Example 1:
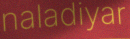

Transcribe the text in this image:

naladiyar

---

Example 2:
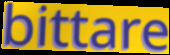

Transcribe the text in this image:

bittare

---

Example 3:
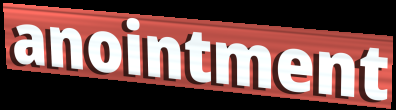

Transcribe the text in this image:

anointment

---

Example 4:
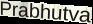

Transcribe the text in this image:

Prabhutva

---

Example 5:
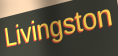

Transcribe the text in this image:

Livingston